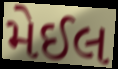
મેઈલ